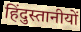
हिंदुस्तानीयों